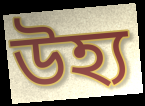
উহ্য